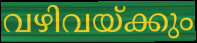
വഴിവയ്ക്കും